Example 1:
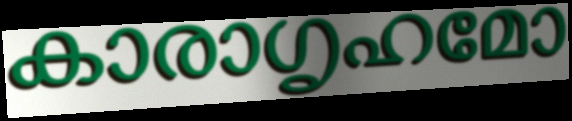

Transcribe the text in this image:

കാരാഗൃഹമോ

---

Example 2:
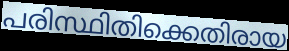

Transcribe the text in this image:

പരിസ്ഥിതിക്കെതിരായ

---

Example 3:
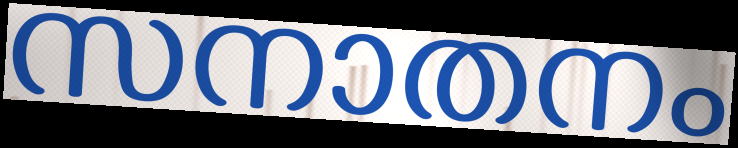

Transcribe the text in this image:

സനാതനം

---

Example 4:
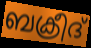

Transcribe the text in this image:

ബക്രീദ്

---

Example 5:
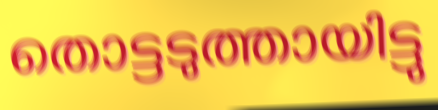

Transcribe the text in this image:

തൊട്ടടുത്തായിട്ടു